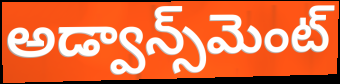
అడ్వాన్స్‌మెంట్